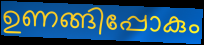
ഉണങ്ങിപ്പോകും